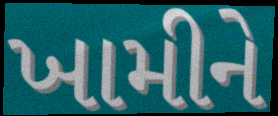
ખામીને